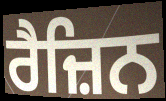
ਰੈਜ਼ਿਨ